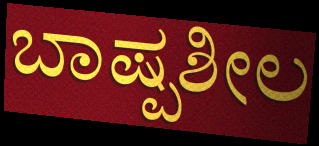
ಬಾಷ್ಪಶೀಲ